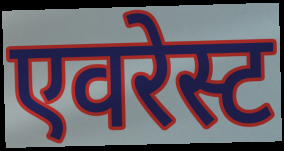
एवरेस्ट